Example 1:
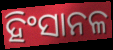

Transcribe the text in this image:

ହିଂସାନଳ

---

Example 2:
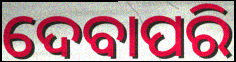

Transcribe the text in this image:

ଦେବାପରି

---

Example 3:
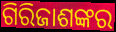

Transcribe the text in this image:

ଗିରିଜାଶଙ୍କର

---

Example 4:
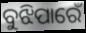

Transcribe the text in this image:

ବୁଝିପାରେଁ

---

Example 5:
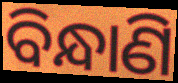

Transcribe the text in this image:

ବିନ୍ଧାଣି